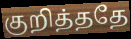
குறித்ததே